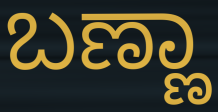
ಬಣ್ಣಾ